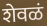
शेवळं